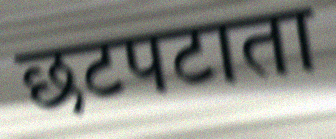
छटपटाता